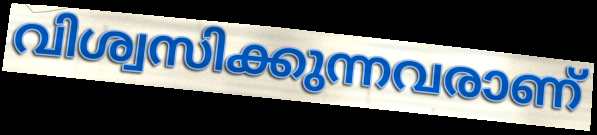
വിശ്വസിക്കുന്നവരാണ്